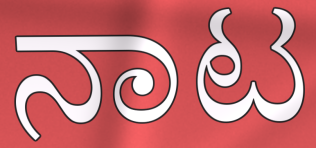
ನಾಟ